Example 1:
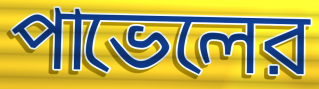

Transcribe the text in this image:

পাভেলের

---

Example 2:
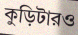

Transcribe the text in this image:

কুড়িটারও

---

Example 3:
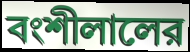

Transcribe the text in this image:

বংশীলালের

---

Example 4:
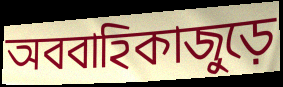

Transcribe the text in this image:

অববাহিকাজুড়ে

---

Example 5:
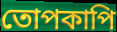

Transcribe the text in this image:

তোপকাপি